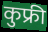
कुफ्री